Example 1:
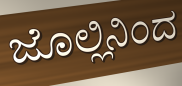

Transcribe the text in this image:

ಜೊಲ್ಲಿನಿಂದ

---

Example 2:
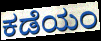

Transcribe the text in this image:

ಕಡೆಯಂ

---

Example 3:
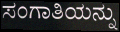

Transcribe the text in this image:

ಸಂಗಾತಿಯನ್ನು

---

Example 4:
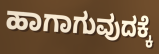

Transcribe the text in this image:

ಹಾಗಾಗುವುದಕ್ಕೆ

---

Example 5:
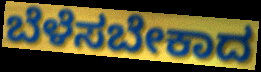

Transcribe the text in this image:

ಬೆಳೆಸಬೇಕಾದ